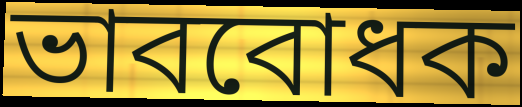
ভাববোধক